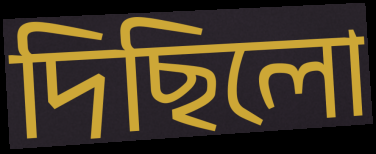
দিছিলো